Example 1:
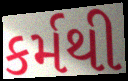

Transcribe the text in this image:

કર્મથી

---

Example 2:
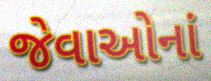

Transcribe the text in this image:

જેવાઓનાં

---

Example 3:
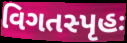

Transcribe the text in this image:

વિગતસ્પૃહઃ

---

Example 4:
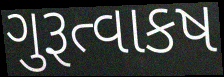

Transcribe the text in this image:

ગુરૂત્વાકષ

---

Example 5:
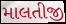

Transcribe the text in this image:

માલતીજી